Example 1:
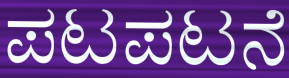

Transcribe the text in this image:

ಪಟಪಟನೆ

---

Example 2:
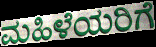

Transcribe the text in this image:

ಮಹಿಳೆಯರಿಗೆ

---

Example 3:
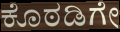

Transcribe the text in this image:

ಕೊಠಡಿಗೇ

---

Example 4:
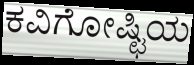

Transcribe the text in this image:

ಕವಿಗೋಷ್ಟಿಯ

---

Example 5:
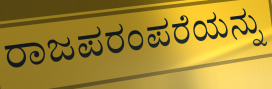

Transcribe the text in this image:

ರಾಜಪರಂಪರೆಯನ್ನು